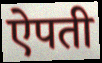
ऐपती